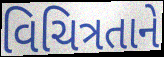
વિચિત્રતાને